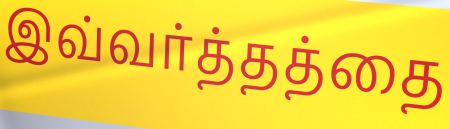
இவ்வர்த்தத்தை